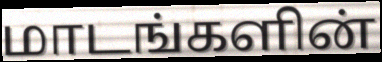
மாடங்களின்